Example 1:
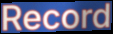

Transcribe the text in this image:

Record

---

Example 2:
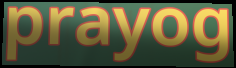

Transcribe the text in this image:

prayog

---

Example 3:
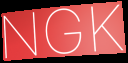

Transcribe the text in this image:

NGK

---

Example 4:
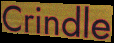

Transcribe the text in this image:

Crindle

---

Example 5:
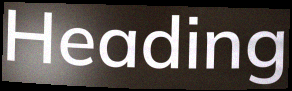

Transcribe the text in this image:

Heading